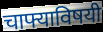
चाफ्याविषयी